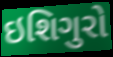
ઇશિગુરો